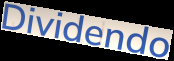
Dividendo